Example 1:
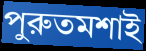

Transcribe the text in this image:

পুরুতমশাই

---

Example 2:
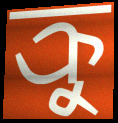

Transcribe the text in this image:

ক্রু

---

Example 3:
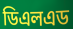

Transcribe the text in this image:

ডিএলএড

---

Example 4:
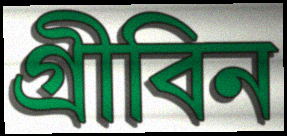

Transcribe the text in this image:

গ্রীবিন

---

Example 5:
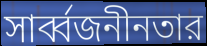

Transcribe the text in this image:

সার্ব্বজনীনতার